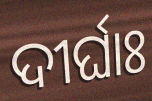
ଦୀର୍ଘାଃ